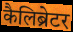
कैलिब्रेटर